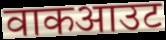
वाकआउट